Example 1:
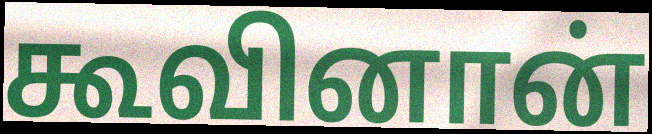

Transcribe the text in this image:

கூவினான்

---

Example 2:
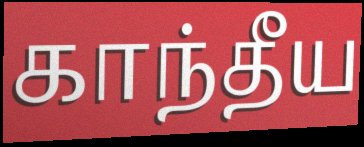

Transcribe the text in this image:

காந்தீய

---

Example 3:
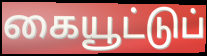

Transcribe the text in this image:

கையூட்டுப்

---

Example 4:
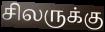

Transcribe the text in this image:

சிலருக்கு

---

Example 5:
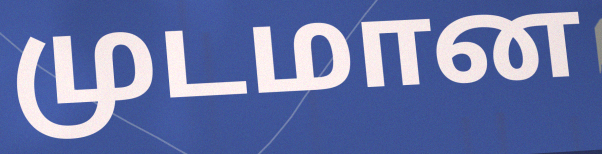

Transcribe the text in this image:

முடமான